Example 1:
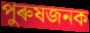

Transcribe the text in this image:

পুৰুষজনক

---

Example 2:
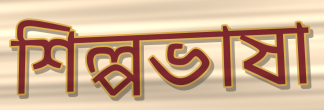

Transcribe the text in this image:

শিল্পভাষা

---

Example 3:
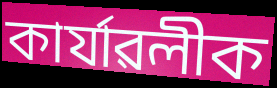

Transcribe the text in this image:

কাৰ্যাৱলীক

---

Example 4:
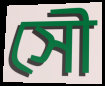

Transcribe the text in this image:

সৌ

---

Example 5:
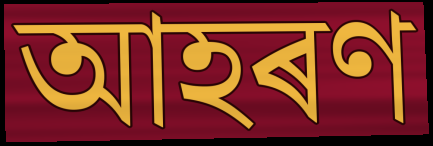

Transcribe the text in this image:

আহৰণ